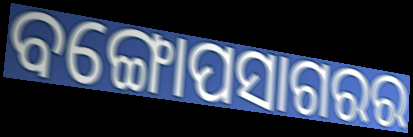
ବଙ୍ଗୋପସାଗରର